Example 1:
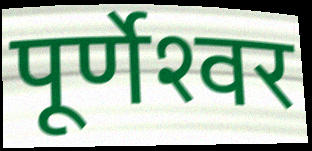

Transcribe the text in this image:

पूर्णेश्वर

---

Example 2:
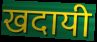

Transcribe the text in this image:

खदायी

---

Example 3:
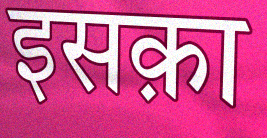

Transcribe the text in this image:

इसक़ा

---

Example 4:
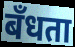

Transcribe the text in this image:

बँधता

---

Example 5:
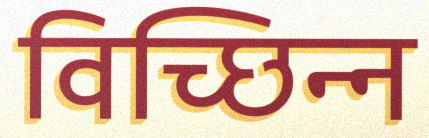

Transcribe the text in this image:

विच्छिन्न